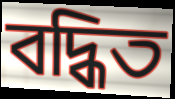
বদ্ধিত